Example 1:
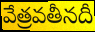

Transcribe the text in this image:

వేత్రవతీనదీ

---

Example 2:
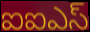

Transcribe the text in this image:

ఐఐఎస్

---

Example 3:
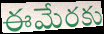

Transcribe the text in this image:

ఈమేరకు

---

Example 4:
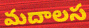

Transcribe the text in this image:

మదాలస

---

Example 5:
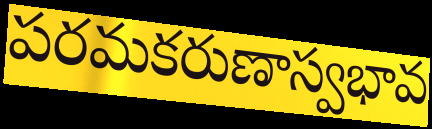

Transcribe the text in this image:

పరమకరుణాస్వభావ